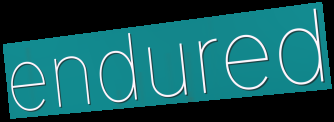
endured